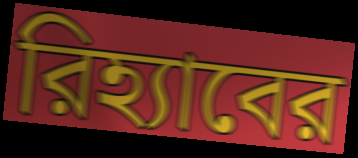
রিহ্যাবের